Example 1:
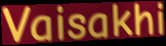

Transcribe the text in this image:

Vaisakhi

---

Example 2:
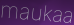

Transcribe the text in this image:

maukaa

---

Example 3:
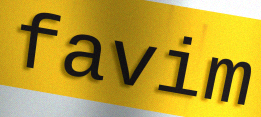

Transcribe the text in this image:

favim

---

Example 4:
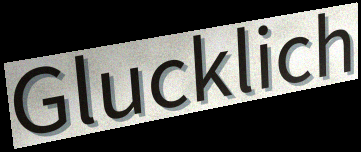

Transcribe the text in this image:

Glucklich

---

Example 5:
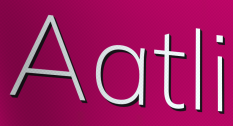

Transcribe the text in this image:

Aatli